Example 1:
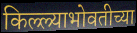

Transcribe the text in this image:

किल्ल्याभोवतीच्या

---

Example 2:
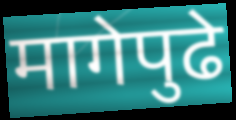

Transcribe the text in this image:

मागेपुढे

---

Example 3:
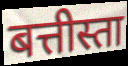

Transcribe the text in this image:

बत्तीस्ता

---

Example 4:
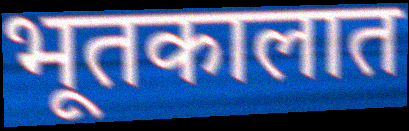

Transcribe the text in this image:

भूतकालात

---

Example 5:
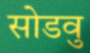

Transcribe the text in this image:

सोडवु